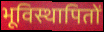
भूविस्थापितों